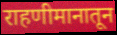
राहणीमानातून